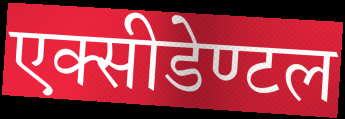
एक्सीडेण्टल